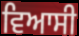
ਵਿਆਸੀ